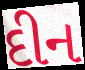
દીન